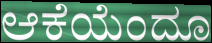
ಆಕೆಯೆಂದೂ